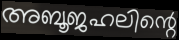
അബൂജഹലിന്റെ